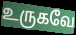
உருகவே